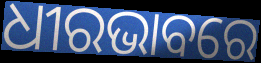
ଧୀରଭାବରେ